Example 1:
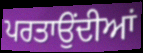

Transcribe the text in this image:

ਪਰਤਾਉਂਦੀਆਂ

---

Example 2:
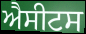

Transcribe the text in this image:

ਐਸੀਟਸ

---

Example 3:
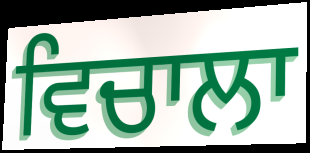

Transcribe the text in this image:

ਵਿਚਾਲਾ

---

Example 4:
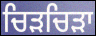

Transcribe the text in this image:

ਚਿੜਚਿੜਾ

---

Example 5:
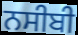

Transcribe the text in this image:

ਨਸੀਬੀ